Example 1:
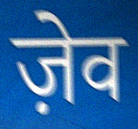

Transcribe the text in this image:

ज़ेव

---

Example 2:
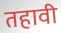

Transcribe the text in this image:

तहावी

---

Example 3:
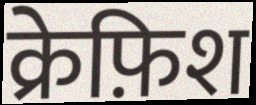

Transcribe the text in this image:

क्रेफ़िश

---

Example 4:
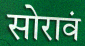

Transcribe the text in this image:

सोरावं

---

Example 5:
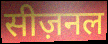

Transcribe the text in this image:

सीज़नल